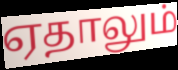
ஏதாலும்